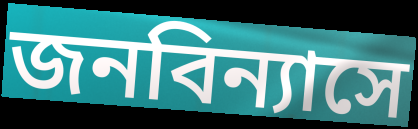
জনবিন্যাসে